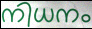
നിധനം